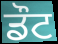
ਡੌਟ